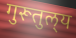
गुरूतुल्य